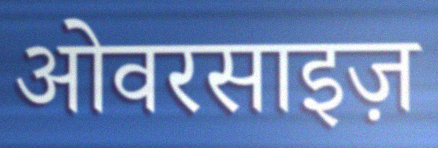
ओवरसाइज़